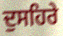
ਦੁਸਹਿਰੇ